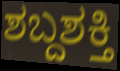
ಶಬ್ದಶಕ್ತಿ